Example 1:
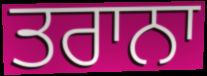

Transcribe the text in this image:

ਤਰਾਨਾ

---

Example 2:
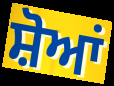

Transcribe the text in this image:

ਸ਼ੋਆਂ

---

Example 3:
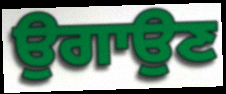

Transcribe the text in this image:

ਉਗਾਉਣ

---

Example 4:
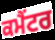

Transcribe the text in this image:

ਕਮੈਂਟਰ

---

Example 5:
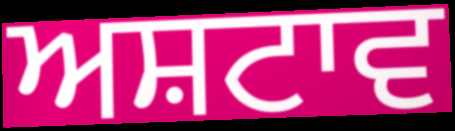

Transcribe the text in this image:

ਅਸ਼ਟਾਵ